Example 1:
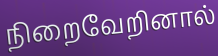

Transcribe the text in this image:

நிறைவேறினால்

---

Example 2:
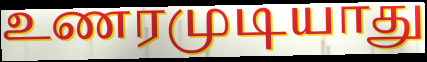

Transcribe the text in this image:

உணரமுடியாது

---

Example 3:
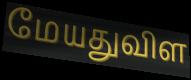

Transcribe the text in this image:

மேயதுவிள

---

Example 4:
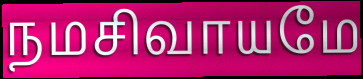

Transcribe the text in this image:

நமசிவாயமே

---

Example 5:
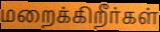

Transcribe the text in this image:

மறைக்கிறீர்கள்